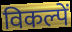
विकल्पें